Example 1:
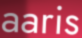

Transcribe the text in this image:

aaris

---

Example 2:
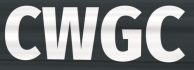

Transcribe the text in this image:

CWGC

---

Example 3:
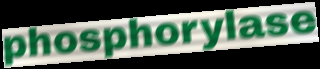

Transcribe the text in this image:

phosphorylase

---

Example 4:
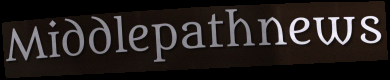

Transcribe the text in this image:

Middlepathnews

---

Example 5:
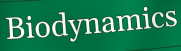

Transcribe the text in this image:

Biodynamics